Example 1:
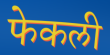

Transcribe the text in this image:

फेकली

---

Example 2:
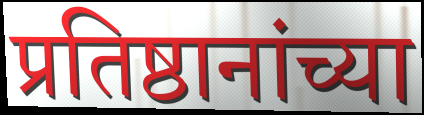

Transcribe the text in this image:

प्रतिष्ठानांच्या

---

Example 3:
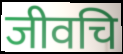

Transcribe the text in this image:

जीवचि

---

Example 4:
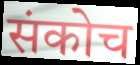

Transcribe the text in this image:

संकोच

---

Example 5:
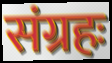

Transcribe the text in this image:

संग्रहः